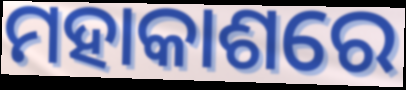
ମହାକାଶରେ